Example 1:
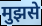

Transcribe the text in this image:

मुझसे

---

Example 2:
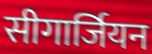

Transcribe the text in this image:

सीगार्जियन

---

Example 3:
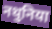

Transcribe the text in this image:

नथुनिया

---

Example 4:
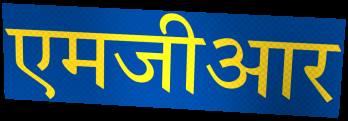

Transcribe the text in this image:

एमजीआर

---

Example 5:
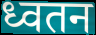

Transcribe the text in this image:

ध्वतन